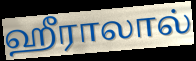
ஹீராலால்